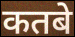
कतबे